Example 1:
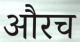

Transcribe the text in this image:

औरच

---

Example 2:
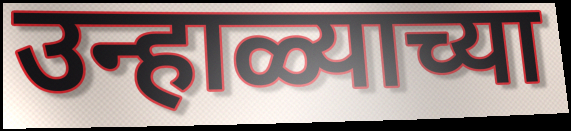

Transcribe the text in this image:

उन्हाळ्याच्या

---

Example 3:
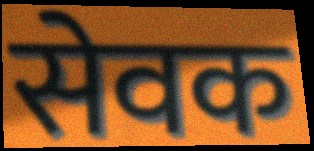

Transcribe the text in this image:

सेवक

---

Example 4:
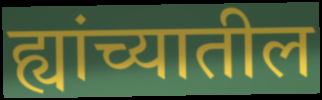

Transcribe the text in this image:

ह्यांच्यातील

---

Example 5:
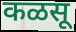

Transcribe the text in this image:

कळसू